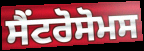
ਸੈਂਟਰੋਸੋਮਸ